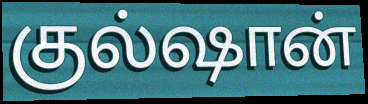
குல்ஷான்